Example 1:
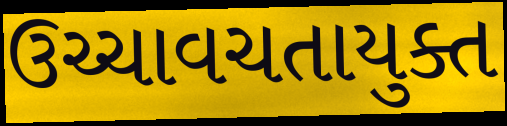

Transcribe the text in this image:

ઉચ્ચાવચતાયુક્ત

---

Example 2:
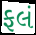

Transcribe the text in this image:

ફલં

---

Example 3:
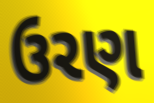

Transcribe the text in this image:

ઉરણ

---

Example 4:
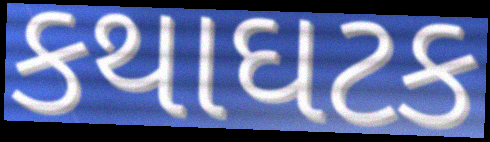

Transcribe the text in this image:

કથાઘટક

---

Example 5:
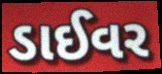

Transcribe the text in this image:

ડાઈવર